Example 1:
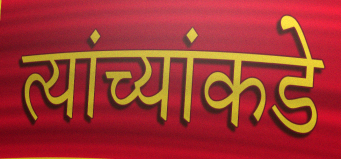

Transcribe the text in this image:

त्यांच्यांकडे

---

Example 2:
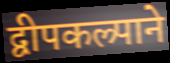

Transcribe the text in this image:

द्वीपकल्पाने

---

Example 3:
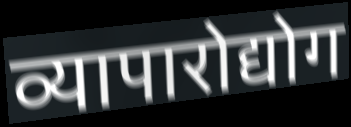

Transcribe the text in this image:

व्यापारोद्योग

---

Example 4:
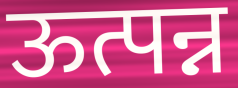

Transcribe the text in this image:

ऊत्पन्न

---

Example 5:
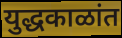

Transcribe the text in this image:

युद्धकाळांत